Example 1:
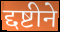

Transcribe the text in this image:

द्दष्टीने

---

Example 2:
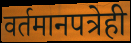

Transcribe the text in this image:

वर्तमानपत्रेही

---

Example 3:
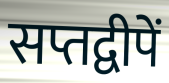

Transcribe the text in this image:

सप्तद्वीपें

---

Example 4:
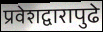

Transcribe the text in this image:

प्रवेशद्वारापुढे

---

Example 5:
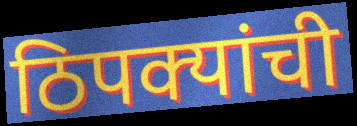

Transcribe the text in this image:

ठिपक्यांची